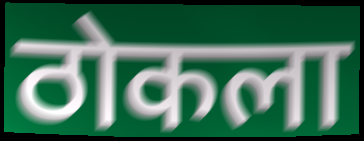
ठोकला